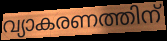
വ്യാകരണത്തിന്